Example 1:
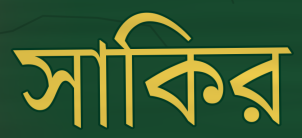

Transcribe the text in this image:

সাকির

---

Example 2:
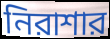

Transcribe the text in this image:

নিরাশার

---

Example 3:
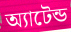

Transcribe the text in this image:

অ্যাটেন্ড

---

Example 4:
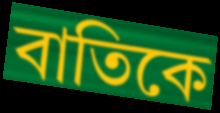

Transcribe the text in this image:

বাতিকে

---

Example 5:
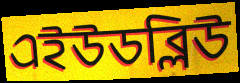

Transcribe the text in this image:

এইউডব্লিউ